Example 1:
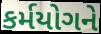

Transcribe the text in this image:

કર્મયોગને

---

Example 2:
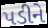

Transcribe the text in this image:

પડીને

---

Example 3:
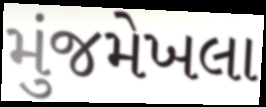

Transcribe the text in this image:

મુંજમેખલા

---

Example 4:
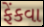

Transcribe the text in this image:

ફેંકવા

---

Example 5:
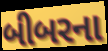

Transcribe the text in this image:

બીબરના